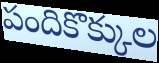
పందికొక్కుల